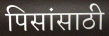
पिसांसाठी